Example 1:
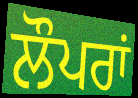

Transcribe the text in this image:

ਲੌਪਰਾਂ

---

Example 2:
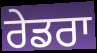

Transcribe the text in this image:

ਰੇਡਰਾ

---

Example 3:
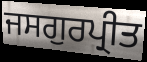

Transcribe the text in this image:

ਜਸਗੁਰਪ੍ਰੀਤ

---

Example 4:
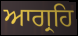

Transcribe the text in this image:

ਆਗ੍ਰਹਿ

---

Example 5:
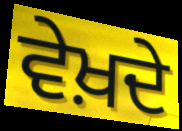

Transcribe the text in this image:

ਵੇਖ਼ਦੇ